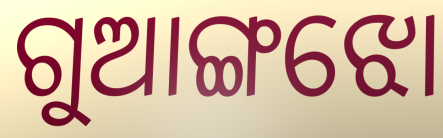
ଗୁଆଙ୍ଗଝୋ